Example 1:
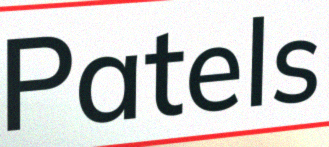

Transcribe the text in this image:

Patels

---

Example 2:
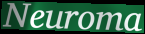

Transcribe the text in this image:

Neuroma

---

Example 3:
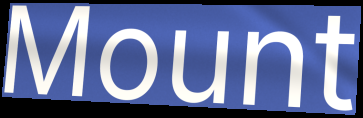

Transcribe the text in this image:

Mount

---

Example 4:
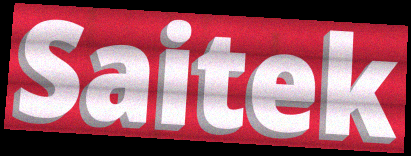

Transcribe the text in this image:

Saitek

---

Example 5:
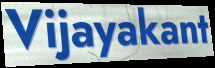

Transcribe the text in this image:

Vijayakant